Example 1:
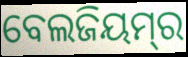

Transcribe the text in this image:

ବେଲଜିୟମ୍‌ର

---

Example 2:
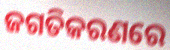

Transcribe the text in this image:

ଜଗତିକରଣରେ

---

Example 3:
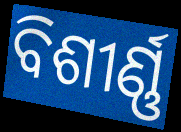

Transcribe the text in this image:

ବିଶୀର୍ଣ୍ଣ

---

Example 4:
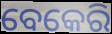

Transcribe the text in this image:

ବେକେରି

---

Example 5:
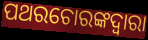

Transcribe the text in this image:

ପଥରଚୋରଙ୍କଦ୍ୱାରା